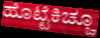
ಹೊಟ್ಟೆಕಿಚ್ಚೂ